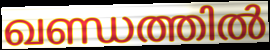
ഖണ്ഡത്തിൽ